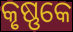
କୃଷ୍ଣକେ